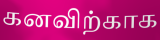
கனவிற்காக